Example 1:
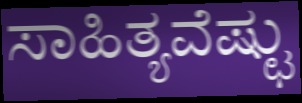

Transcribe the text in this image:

ಸಾಹಿತ್ಯವೆಷ್ಟು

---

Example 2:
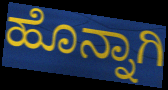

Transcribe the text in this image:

ಹೊನ್ನಾಗಿ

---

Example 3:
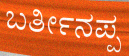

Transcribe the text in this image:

ಬರ್ತೀನಪ್ಪ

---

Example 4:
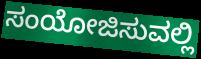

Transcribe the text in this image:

ಸಂಯೋಜಿಸುವಲ್ಲಿ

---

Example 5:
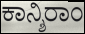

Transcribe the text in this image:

ಕಾನ್ಶಿರಾಂ